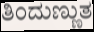
ತಿಂದುಣ್ಣುತ